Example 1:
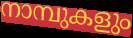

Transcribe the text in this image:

നാമ്പുകളും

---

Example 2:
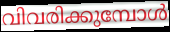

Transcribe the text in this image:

വിവരിക്കുമ്പോൾ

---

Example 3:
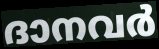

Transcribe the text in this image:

ദാനവർ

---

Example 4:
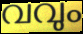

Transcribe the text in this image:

വവും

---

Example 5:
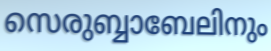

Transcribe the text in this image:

സെരുബ്ബാബേലിനും